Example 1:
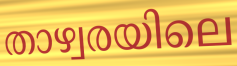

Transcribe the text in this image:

താഴ്വരയിലെ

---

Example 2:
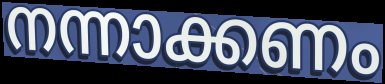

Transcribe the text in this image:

നന്നാക്കണം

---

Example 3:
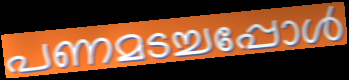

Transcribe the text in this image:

പണമടച്ചപ്പോൾ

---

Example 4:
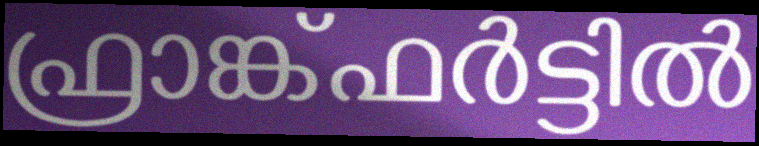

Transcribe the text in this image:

ഫ്രാങ്ക്ഫർട്ടിൽ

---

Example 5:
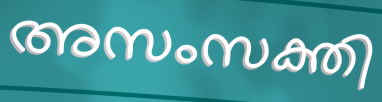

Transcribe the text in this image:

അസംസക്തി